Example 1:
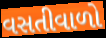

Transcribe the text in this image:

વસતીવાળો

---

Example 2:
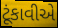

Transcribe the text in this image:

ટૂંકાવીએ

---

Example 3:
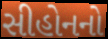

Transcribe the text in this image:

સીહોનનો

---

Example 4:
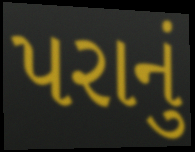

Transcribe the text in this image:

પરાનું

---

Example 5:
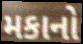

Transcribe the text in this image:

મકાનો